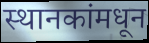
स्थानकांमधून